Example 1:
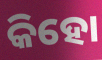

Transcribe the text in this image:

କିହୋ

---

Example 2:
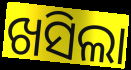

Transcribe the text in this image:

ଖସିଲା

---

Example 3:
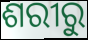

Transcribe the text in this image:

ଶରୀରୁ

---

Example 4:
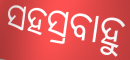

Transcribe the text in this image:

ସହସ୍ରବାହୁ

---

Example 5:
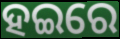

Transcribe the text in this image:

ହଇରେ